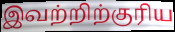
இவற்றிற்குரிய